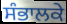
ਸੰਭਾਲਕੇ